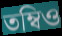
তম্বিও